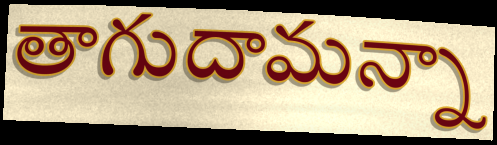
తాగుదామన్నా